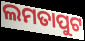
ଲମତାପୁଟ